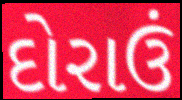
દોરાઉં